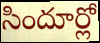
సిందూర్లో